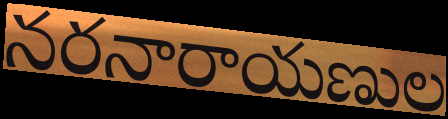
నరనారాయణుల